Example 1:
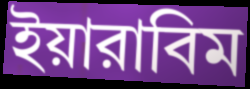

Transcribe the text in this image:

ইয়ারাবিম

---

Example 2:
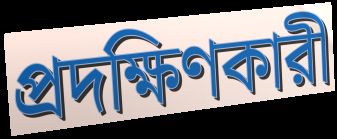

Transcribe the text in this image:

প্রদক্ষিণকারী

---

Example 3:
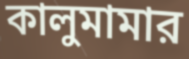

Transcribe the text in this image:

কালুমামার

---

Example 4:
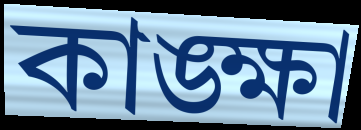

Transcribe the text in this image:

কাঙ্ক্ষা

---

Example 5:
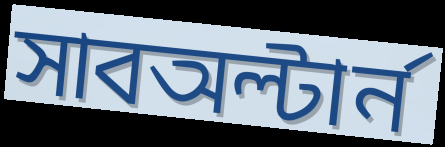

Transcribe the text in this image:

সাবঅল্টার্ন